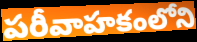
పరీవాహకంలోని